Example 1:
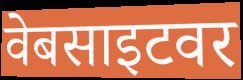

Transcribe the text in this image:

वेबसाइटवर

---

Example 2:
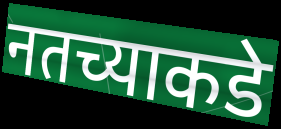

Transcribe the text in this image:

नतच्याकडे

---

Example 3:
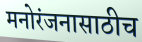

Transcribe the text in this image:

मनोरंजनासाठीच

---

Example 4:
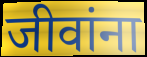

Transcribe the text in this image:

जीवांना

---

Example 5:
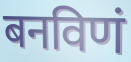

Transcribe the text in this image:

बनविणं